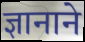
ज्ञानाने